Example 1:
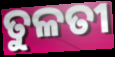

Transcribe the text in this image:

ତୁଳତୀ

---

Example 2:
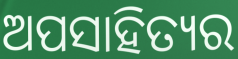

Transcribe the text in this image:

ଅପସାହିତ୍ୟର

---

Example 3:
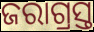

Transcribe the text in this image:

ଜରାଗ୍ରସ୍ତ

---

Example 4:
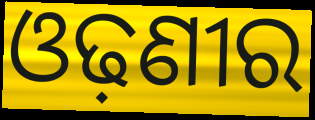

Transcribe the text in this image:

ଓଢ଼ଣୀର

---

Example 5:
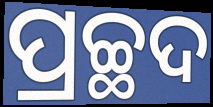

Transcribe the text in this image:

ପ୍ରଚ୍ଛଦ